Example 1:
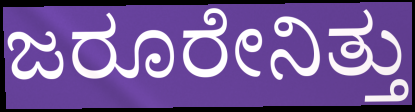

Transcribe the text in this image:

ಜರೂರೇನಿತ್ತು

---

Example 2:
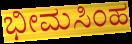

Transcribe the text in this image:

ಭೀಮಸಿಂಹ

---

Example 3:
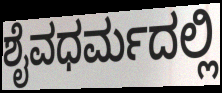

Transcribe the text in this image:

ಶೈವಧರ್ಮದಲ್ಲಿ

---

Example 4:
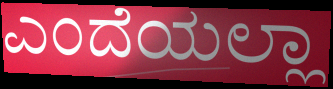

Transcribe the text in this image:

ಎಂದೆಯಲ್ಲಾ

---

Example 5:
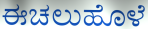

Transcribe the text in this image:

ಈಚಲುಹೊಳೆ